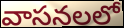
వాసనలలో